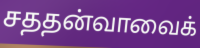
சததன்வாவைக்